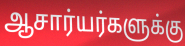
ஆசார்யர்களுக்கு